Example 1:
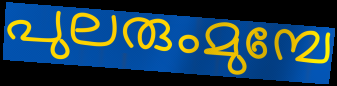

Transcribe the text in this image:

പുലരുംമുമ്പേ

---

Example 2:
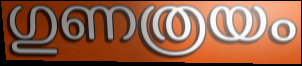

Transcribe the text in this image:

ഗുണത്രയം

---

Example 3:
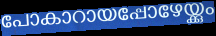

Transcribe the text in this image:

പോകാറായപ്പോഴേയ്ക്കും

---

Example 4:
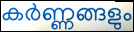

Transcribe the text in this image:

കർണ്ണങ്ങളും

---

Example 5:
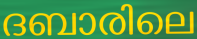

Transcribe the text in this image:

ദബാരിലെ